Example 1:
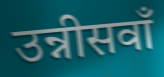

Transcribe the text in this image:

उन्नीसवाँ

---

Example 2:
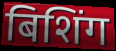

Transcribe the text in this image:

बिशिंग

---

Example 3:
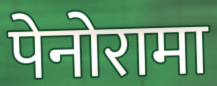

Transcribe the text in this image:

पेनोरामा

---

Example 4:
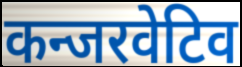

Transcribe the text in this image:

कन्जरवेटिव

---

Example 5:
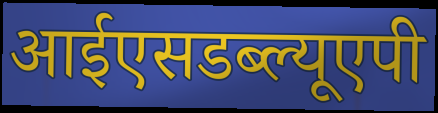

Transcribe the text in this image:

आईएसडब्ल्यूएपी